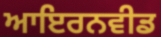
ਆਇਰਨਵੀਡ